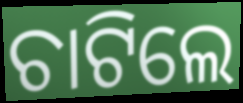
ଚାଟିଲେ